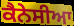
ਕੈਨੇਸੀਆ